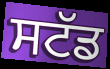
ਸਟੱਡ